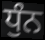
ਧੁੰਨ